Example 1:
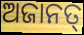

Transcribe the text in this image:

ଅଜାନତ୍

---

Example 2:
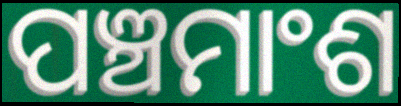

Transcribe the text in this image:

ପଞ୍ଚମାଂଶ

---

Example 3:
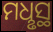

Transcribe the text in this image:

ମଧୢସ୍ଥ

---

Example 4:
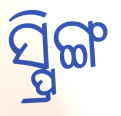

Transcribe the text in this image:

ସ୍ପ୍ରିଙ୍ଗ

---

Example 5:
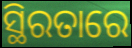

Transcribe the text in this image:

ସ୍ଥିରତାରେ